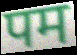
पम